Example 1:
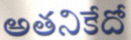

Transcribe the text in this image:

అతనికేదో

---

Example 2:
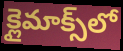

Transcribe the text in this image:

క్లైమాక్స్‌లో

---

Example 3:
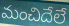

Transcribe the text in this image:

మంచిదేలే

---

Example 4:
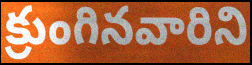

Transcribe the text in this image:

క్రుంగినవారిని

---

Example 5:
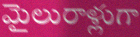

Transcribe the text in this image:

మైలురాళ్లుగా